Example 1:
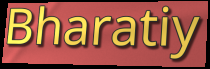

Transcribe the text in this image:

Bharatiy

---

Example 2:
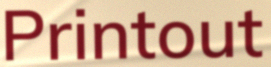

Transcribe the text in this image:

Printout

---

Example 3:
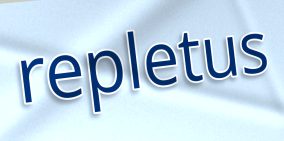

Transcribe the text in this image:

repletus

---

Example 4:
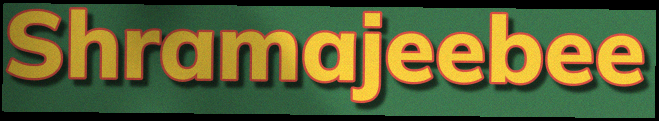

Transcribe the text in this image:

Shramajeebee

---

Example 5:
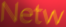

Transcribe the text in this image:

Netw